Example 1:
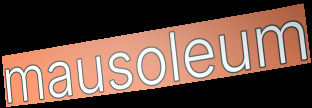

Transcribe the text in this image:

mausoleum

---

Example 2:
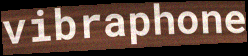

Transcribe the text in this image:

vibraphone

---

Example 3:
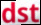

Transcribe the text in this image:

dst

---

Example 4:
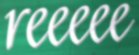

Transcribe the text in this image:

reeeee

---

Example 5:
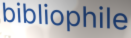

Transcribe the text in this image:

bibliophile